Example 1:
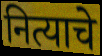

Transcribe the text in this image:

नित्याचे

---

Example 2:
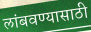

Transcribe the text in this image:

लांबवण्यासाठी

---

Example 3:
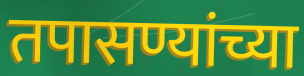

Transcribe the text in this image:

तपासण्यांच्या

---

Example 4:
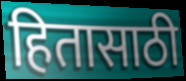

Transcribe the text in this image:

हितासाठी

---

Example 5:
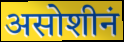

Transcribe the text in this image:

असोशीनं